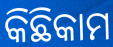
କିଛିକାମ